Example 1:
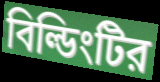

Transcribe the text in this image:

বিল্ডিংটির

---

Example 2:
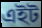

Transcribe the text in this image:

এইট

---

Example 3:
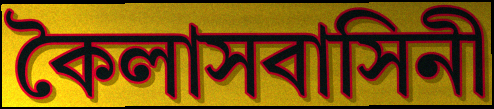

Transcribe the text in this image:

কৈলাসবাসিনী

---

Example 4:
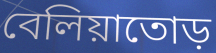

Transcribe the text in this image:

বেলিয়াতোড়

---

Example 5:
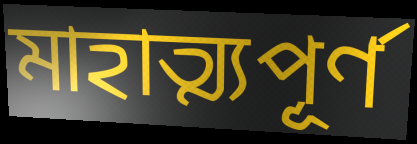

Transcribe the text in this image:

মাহাত্ম্যপূর্ণ